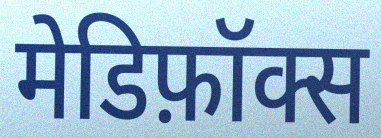
मेडिफ़ॉक्स